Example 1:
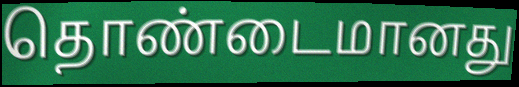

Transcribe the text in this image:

தொண்டைமானது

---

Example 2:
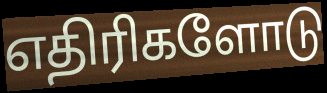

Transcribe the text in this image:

எதிரிகளோடு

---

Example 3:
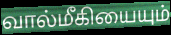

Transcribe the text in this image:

வால்மீகியையும்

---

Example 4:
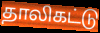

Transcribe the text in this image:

தாலிகட்டு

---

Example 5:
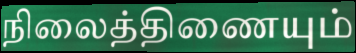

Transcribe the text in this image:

நிலைத்திணையும்